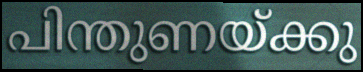
പിന്തുണയ്ക്കു